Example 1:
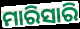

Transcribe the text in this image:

ମାରିସାରି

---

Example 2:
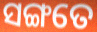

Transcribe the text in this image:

ସଙ୍ଗତେ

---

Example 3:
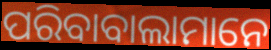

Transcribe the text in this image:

ପରିବାବାଲାମାନେ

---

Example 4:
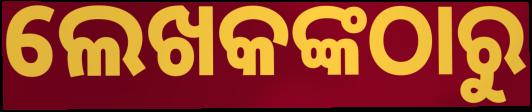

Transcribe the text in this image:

ଲେଖକଙ୍କଠାରୁ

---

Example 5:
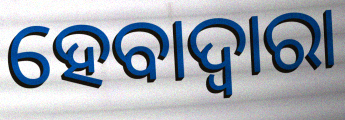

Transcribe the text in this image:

ହେବାଦ୍ୱାରା